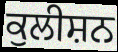
ਕੁਲੀਸ਼ਨ